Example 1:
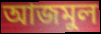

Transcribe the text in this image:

আজমুল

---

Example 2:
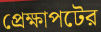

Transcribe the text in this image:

প্রেক্ষাপটের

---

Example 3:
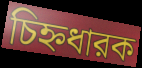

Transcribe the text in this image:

চিহ্নধারক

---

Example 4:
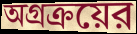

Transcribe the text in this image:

অগ্রক্রয়ের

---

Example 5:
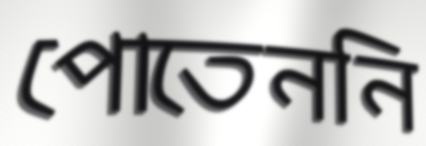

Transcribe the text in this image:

পোতেননি